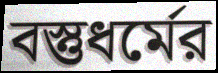
বস্তুধর্মের